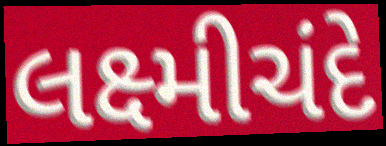
લક્ષ્મીચંદે